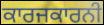
ਕਾਰਜਕਾਰਨੀ